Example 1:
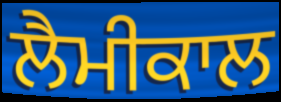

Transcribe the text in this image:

ਲੈਮੀਕਾਲ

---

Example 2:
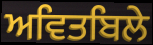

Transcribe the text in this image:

ਅਵਿਤਬਿਲੇ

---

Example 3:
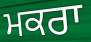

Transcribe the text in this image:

ਮਕਰਾ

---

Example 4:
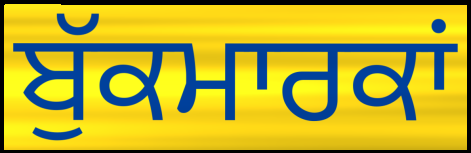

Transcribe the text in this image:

ਬੁੱਕਮਾਰਕਾਂ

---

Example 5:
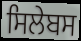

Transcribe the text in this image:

ਸਿਲੇਬਸ